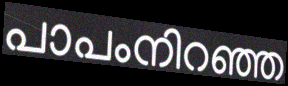
പാപംനിറഞ്ഞ